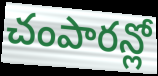
చంపారన్లో